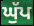
ਘੁੱਪ